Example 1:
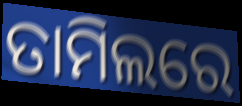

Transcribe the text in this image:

ତାମିଲରେ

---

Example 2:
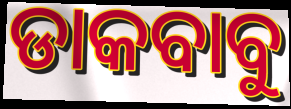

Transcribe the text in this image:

ଡାକବାବୁ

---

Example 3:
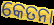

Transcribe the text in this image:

କେତନା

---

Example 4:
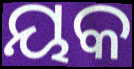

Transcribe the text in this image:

ୟକ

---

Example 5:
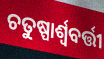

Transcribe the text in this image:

ଚତୁଷ୍ପାର୍ଶ୍ୱବର୍ତ୍ତୀ